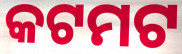
କଟମଟ